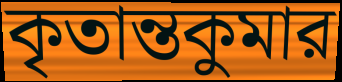
কৃতান্তকুমার